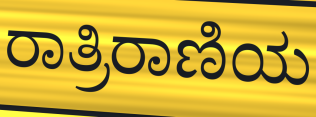
ರಾತ್ರಿರಾಣಿಯ